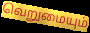
வெறுமையும்